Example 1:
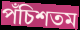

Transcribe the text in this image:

পঁচিশতম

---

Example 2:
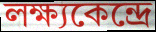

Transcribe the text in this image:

লক্ষ্যকেন্দ্রে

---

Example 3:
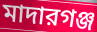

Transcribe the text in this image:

মাদারগঞ্জ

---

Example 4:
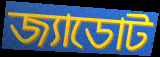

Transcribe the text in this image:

জ্যাডোট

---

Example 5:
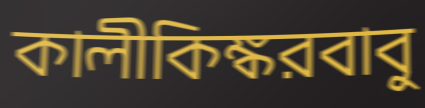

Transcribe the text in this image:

কালীকিঙ্করবাবু